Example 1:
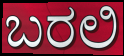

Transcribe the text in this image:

ಬರಲಿ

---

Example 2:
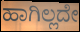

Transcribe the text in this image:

ಹಾಗಿಲ್ಲದೇ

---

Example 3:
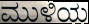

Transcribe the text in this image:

ಮುಳಿಯ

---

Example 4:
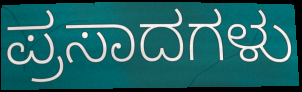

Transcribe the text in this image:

ಪ್ರಸಾದಗಳು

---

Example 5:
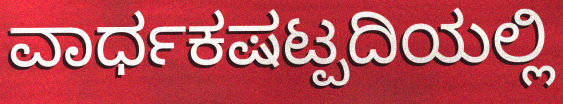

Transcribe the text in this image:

ವಾರ್ಧಕಷಟ್ಪದಿಯಲ್ಲಿ